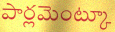
పార్లమెంట్కూ